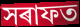
সৰাফত